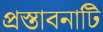
প্রস্তাবনাটি